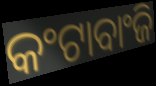
କଂଟାବାଂଜି